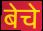
बेचे